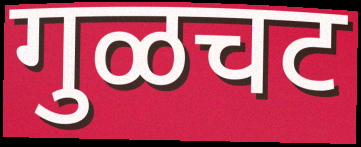
गुळचट